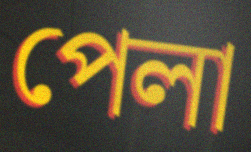
পেলা